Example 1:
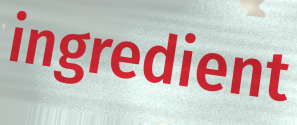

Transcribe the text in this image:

ingredient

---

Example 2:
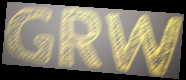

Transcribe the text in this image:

GRW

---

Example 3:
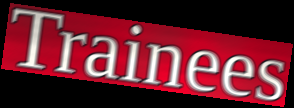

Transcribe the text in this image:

Trainees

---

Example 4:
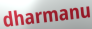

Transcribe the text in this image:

dharmanu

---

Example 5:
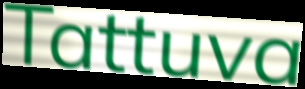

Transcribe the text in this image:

Tattuva